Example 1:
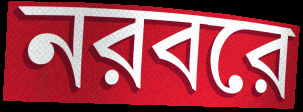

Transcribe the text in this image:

নরবরে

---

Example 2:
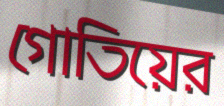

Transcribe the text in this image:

গোতিয়ের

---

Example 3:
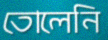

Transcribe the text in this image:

তোলেনি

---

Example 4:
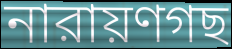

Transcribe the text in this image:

নারায়ণগছ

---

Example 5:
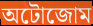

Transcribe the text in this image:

অটোজোম